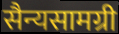
सैन्यसामग्री